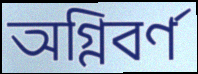
অগ্নিবর্ণ